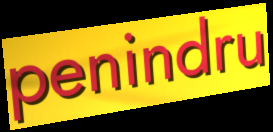
penindru